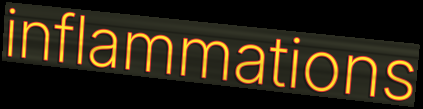
inflammations